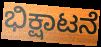
ಭಿಕ್ಷಾಟನೆ